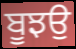
ਬੂਝਉ